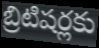
బ్రిటిషర్లకు